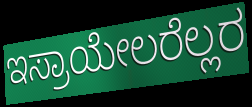
ಇಸ್ರಾಯೇಲರೆಲ್ಲರ